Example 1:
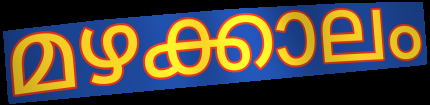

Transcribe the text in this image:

മഴക്കാലം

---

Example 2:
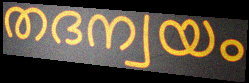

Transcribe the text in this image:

തദന്വയം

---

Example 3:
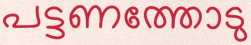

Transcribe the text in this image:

പട്ടണത്തോടു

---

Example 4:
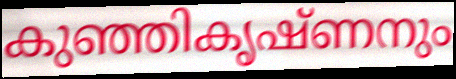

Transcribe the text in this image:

കുഞ്ഞികൃഷ്ണനും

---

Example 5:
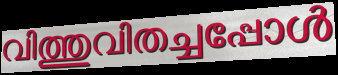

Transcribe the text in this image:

വിത്തുവിതച്ചപ്പോൾ